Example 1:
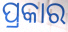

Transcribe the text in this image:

ପ୍ରକାର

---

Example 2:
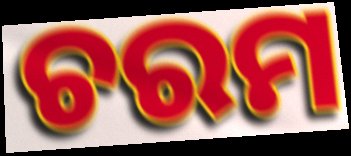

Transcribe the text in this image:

ଚରମ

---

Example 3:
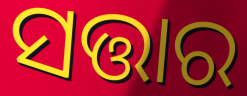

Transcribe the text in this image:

ସତ୍ତାର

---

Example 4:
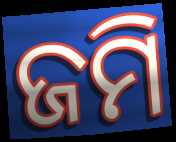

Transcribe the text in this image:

ଜମି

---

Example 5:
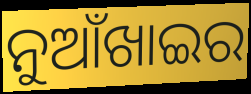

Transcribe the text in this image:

ନୁଆଁଖାଇର